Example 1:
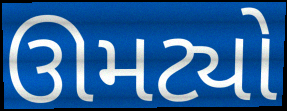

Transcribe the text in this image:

ઊમટ્યો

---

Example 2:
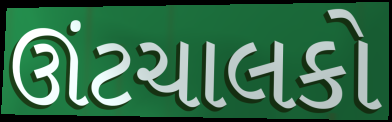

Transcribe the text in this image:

ઊંટચાલકો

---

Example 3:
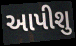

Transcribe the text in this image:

આપીશુ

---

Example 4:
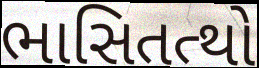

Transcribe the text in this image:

ભાસિતત્થો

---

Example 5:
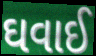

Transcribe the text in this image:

ઘવાઈ